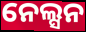
ନେଲ୍ସନ